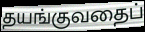
தயங்குவதைப்